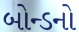
બોન્ડનો